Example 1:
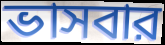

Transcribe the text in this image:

ভাসবার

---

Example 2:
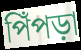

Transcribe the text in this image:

পিঁপড়া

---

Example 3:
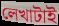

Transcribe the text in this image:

লেখাটাই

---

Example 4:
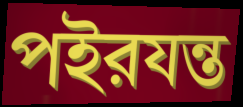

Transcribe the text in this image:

পইরযন্ত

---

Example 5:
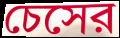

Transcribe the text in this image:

চেসের